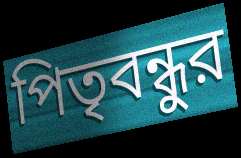
পিতৃবন্ধুর